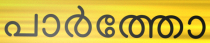
പാർത്തോ